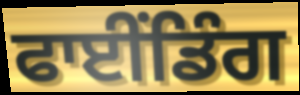
ਫਾਈਂਡਿੰਗ